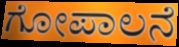
ಗೋಪಾಲನೆ